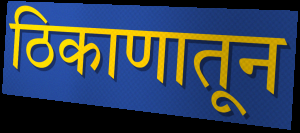
ठिकाणातून